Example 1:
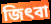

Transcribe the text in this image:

জিৎবা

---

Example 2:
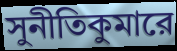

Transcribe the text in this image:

সুনীতিকুমারে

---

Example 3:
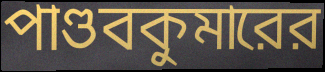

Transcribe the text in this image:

পাণ্ডবকুমারের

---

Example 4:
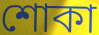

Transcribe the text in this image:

শোকা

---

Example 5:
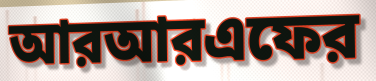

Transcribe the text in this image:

আরআরএফের